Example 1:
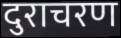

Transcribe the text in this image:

दुराचरण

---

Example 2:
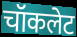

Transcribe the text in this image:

चॉकलेट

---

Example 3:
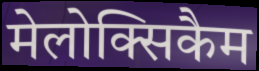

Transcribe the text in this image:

मेलोक्सिकैम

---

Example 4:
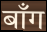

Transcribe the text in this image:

बाँग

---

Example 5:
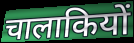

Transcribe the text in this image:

चालाकियों